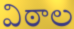
విఠాల